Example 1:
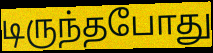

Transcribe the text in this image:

டிருந்தபோது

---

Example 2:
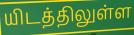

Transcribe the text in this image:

யிடத்திலுள்ள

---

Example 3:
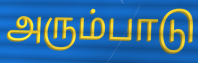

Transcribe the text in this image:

அரும்பாடு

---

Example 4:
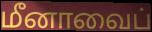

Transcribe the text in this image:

மீனாவைப்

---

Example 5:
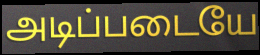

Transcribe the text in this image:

அடிப்படையே